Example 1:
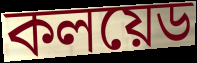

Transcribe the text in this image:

কলয়েড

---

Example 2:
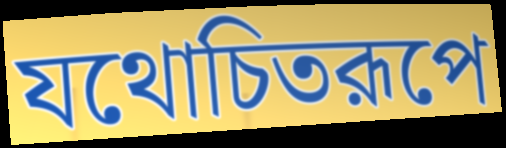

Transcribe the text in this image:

যথোচিতরূপে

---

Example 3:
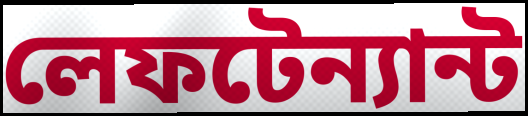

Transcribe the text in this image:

লেফটেন্যান্ট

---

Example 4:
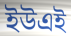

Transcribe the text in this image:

ইউএই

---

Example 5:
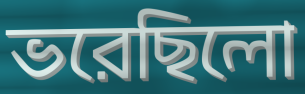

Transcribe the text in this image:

ভরেছিলো